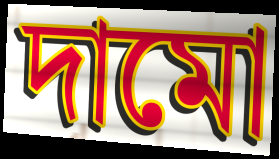
দামো